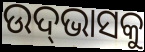
ଉଦ୍‌ଭାସକୁ